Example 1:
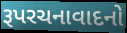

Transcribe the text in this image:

રૂપરચનાવાદનો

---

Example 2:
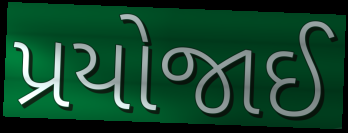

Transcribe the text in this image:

પ્રયોજાઈ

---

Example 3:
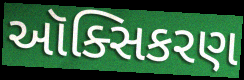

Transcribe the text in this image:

ઑક્સિકરણ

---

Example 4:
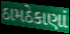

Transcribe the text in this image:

ઠામઠેકાણાં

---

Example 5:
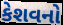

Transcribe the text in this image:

કેશવનો